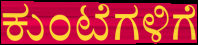
ಕುಂಟೆಗಳಿಗೆ